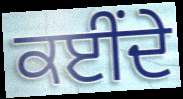
ਕਈਂਦੇ